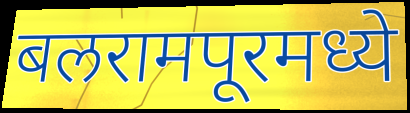
बलरामपूरमध्ये